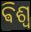
ଵିଶ୍ୱ